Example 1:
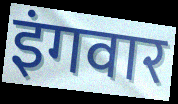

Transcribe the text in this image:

इंगवार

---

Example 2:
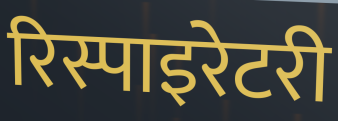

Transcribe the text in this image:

रिस्पाइरेटरी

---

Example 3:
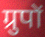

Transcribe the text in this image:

ग्रुपों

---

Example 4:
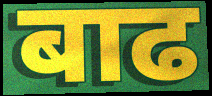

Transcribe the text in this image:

बाढ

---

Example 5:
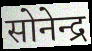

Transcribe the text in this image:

सोनेन्द्र